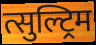
त्सुल्ट्रिम